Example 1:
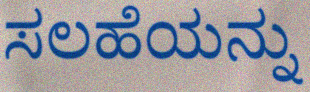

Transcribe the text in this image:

ಸಲಹೆಯನ್ನು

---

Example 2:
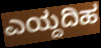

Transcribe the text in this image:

ಎಯ್ದದಿಹ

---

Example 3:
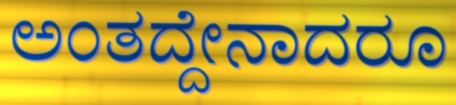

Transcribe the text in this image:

ಅಂತದ್ದೇನಾದರೂ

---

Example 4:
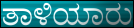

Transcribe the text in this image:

ತಾಳಿಯಾರು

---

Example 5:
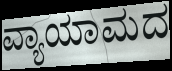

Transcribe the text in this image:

ವ್ಯಾಯಾಮದ